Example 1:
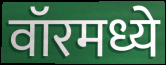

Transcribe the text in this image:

वॉरमध्ये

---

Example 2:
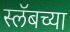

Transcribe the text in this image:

स्लॅबच्या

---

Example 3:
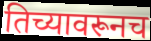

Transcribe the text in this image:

तिच्यावरूनच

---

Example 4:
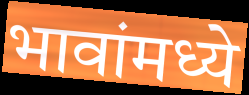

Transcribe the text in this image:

भावांमध्ये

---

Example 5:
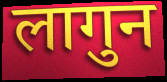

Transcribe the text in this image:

लागुन